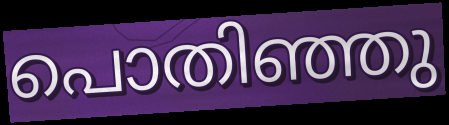
പൊതിഞ്ഞു